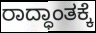
ರಾದ್ಧಾಂತಕ್ಕೆ